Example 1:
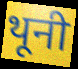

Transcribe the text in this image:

थूनी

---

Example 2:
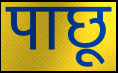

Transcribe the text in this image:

पाछू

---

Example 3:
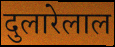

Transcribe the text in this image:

दुलारेलाल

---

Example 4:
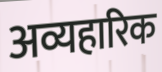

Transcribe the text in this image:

अव्यहारिक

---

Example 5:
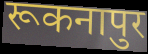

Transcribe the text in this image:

रूकनापुर